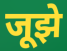
जूझे